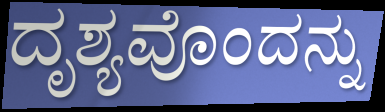
ದೃಶ್ಯವೊಂದನ್ನು